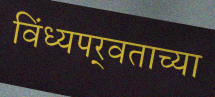
विंध्यपर्वताच्या